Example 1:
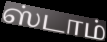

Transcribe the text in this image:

ஸ்டாம்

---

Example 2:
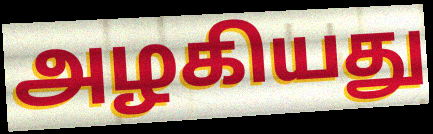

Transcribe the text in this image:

அழகியது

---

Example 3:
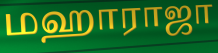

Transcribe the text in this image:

மஹாராஜா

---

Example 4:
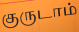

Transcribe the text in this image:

குருடாம்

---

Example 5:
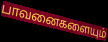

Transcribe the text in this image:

பாவனைகளையும்